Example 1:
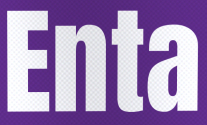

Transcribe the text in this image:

Enta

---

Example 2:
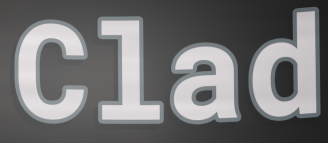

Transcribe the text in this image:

Clad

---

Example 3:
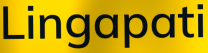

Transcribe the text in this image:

Lingapati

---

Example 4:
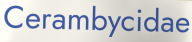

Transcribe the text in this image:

Cerambycidae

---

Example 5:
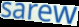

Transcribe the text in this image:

sarew